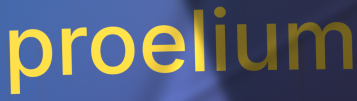
proelium